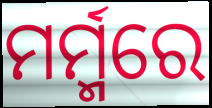
ମର୍ମ୍ମରେ